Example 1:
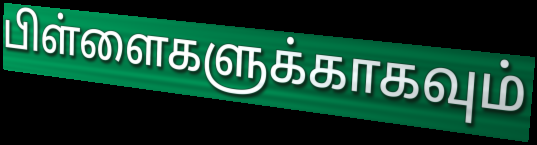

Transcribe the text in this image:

பிள்ளைகளுக்காகவும்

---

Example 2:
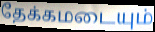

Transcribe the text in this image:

தேக்கமடையும்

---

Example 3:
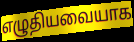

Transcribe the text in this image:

எழுதியவையாக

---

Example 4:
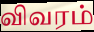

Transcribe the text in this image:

விவரம்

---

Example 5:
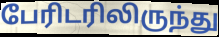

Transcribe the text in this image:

பேரிடரிலிருந்து